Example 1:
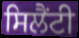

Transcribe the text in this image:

ਸਿਲੈਂਟੀ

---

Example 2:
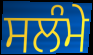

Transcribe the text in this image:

ਸਲੰਮੇ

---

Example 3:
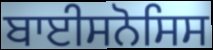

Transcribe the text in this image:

ਬਾਈਸਨੋਸਿਸ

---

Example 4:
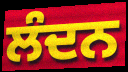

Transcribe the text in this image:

ਲੰਦਨ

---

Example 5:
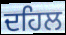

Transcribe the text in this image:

ਦਹਿਲ